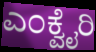
ಎಂಕ್ವೈರಿ